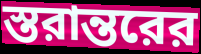
স্তরান্তরের